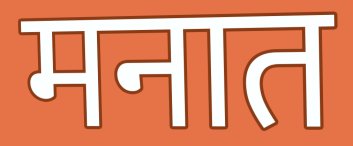
मनात